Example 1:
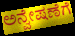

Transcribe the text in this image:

ಅನ್ವೇಷಣೆಗೆ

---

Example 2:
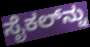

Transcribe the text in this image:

ಸೈಕಲ್‌ನ್ನು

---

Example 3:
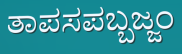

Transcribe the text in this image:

ತಾಪಸಪಬ್ಬಜ್ಜಂ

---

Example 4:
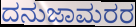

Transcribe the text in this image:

ದನುಜಾಮರರ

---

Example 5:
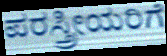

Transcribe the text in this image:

ಪರಸ್ತ್ರೀಯರಿಗೆ